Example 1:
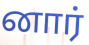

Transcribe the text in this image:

னார்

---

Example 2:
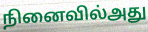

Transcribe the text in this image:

நினைவில்அது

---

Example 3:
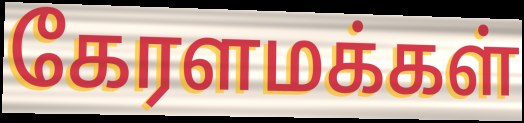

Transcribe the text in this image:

கேரளமக்கள்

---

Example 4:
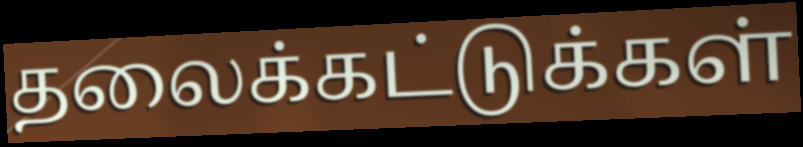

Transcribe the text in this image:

தலைக்கட்டுக்கள்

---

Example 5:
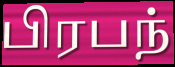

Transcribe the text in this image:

பிரபந்